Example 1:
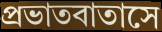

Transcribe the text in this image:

প্রভাতবাতাসে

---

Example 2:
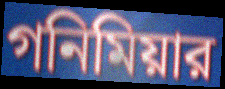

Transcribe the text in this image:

গনিমিয়ার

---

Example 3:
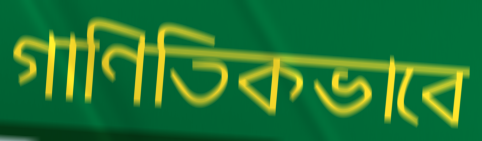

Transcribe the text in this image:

গাণিতিকভাবে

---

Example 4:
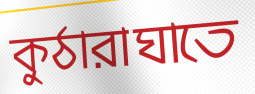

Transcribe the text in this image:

কুঠারাঘাতে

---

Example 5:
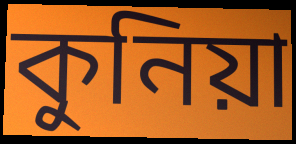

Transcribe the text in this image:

কুনিয়া